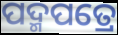
ପଦ୍ମପତ୍ରେ